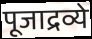
पूजाद्रव्ये